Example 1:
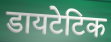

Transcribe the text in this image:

डायटेटिक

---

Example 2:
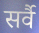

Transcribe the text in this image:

सर्वै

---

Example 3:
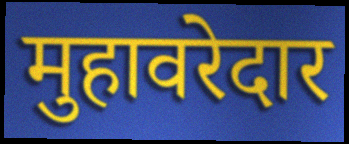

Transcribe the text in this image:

मुहावरेदार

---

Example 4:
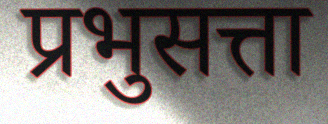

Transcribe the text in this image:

प्रभुसत्ता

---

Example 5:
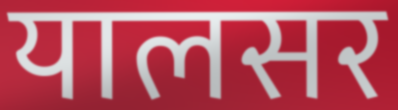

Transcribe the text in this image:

यालसर